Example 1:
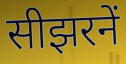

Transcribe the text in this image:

सीझरनें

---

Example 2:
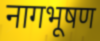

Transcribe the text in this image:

नागभूषण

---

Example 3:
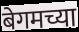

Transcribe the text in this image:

बेगमच्या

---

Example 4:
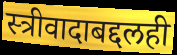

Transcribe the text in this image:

स्त्रीवादाबद्दलही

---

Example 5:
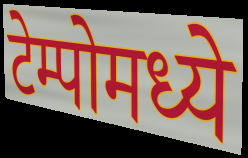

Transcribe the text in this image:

टेम्पोमध्ये